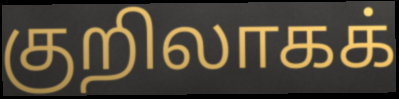
குறிலாகக்